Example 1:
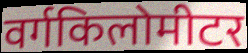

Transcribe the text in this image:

वर्गकिलोमीटर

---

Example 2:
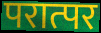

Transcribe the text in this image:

परात्‍पर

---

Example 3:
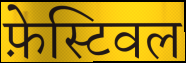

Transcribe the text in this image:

फ़ेस्टिवल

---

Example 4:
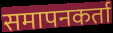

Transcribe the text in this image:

समापनकर्ता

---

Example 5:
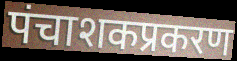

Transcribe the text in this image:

पंचाशकप्रकरण